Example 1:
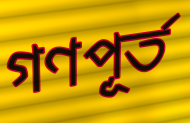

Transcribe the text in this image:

গণপূর্ত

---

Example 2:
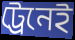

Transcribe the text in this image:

ট্রেনেই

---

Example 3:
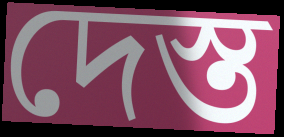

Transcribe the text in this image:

দেস্ত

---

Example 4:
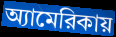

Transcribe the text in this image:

অ্যামেরিকায়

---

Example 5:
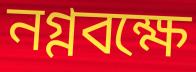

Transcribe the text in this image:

নগ্নবক্ষে